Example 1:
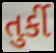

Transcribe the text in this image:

તુર્કી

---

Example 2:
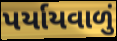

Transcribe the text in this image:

પર્યાયવાળું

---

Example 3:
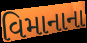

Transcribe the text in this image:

વિમાનાના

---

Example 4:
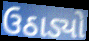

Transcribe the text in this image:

ઉઠાડ્યો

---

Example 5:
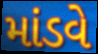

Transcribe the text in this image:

માંડવે